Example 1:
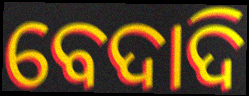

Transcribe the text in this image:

ବେଦାଦି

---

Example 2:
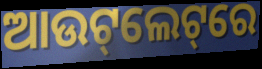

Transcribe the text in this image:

ଆଉଟ୍‌ଲେଟ୍‌ରେ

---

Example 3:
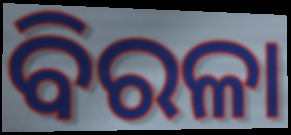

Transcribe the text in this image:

ବିରଳା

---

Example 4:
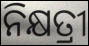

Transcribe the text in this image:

ନିକ୍ଷତ୍ରୀ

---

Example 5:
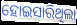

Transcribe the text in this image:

ହୋଇସାରିଥିଲା